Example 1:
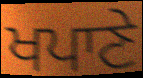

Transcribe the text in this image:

ਖਪਾਣੇ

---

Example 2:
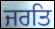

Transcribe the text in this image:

ਜਰਤਿ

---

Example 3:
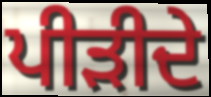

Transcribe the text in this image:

ਪੀੜੀਦੇ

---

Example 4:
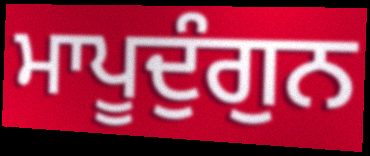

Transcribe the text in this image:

ਮਾਪੂਦੁੰਗੁਨ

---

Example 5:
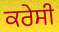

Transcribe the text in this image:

ਕਰੇਸੀ